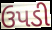
ઉપડી